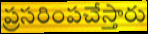
ప్రసరింపచేస్తారు